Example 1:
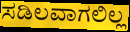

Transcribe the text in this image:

ಸಡಿಲವಾಗಲಿಲ್ಲ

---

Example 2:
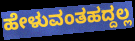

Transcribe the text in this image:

ಹೇಳುವಂತಹದ್ದಲ್ಲ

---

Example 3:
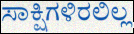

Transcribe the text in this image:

ಸಾಕ್ಷಿಗಳಿರಲಿಲ್ಲ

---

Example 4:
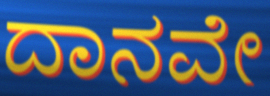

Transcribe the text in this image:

ದಾನವೇ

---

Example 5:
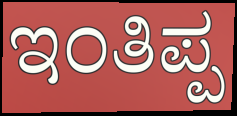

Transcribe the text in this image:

ಇಂತಿಪ್ಪ